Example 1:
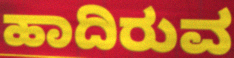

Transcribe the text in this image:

ಹಾದಿರುವ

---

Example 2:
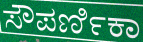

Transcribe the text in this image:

ಸೌಪರ್ಣಿಕಾ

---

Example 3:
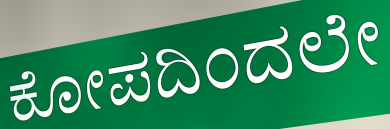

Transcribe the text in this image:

ಕೋಪದಿಂದಲೇ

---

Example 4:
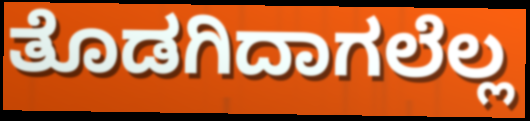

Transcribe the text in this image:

ತೊಡಗಿದಾಗಲೆಲ್ಲ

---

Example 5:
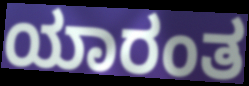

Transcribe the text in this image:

ಯಾರಂತ